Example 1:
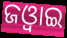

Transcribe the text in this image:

ଜଓ୍ବାଇ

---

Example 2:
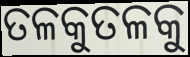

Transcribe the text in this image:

ତଳକୁତଳକୁ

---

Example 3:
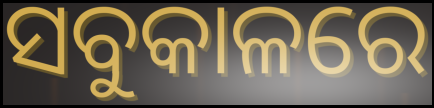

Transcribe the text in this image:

ସବୁକାଳରେ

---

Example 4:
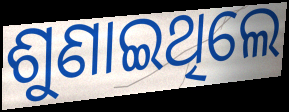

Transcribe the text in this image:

ଶୁଣାଇଥିଲେ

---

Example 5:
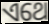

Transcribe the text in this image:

ଏଥେ